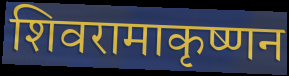
शिवरामाकृष्णन